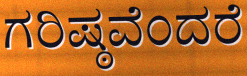
ಗರಿಷ್ಠವೆಂದರೆ